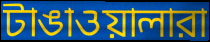
টাঙাওয়ালারা